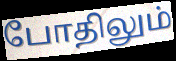
போதிலும்